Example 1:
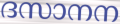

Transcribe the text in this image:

ദസാനന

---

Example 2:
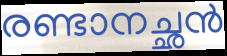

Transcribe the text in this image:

രണ്ടാനച്ഛൻ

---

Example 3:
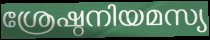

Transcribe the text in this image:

ശ്രേഷ്ഠനിയമസ്യ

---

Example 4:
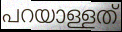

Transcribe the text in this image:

പറയാള്ളത്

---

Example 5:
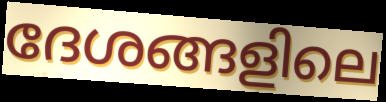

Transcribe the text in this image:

ദേശങ്ങളിലെ